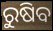
ରୁଷିବ